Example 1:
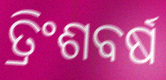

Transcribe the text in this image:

ତ୍ରିଂଶବର୍ଷ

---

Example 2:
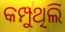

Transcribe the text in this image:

କମ୍ପୁଥିଲି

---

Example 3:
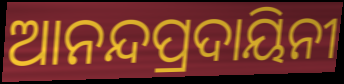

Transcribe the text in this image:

ଆନନ୍ଦପ୍ରଦାୟିନୀ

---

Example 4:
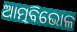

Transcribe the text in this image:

ଆତ୍ମବିଭୋଳ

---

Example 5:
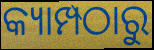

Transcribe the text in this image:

କ୍ୟାମ୍ପଠାରୁ